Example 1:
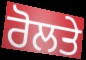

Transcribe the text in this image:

ਰੋਲਤੇ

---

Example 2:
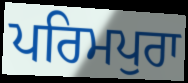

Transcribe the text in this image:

ਪਰਿਮਪੁਰਾ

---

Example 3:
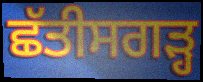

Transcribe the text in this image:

ਛੱਤੀਸਗਡ਼੍ਹ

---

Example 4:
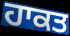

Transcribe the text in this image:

ਹਾਕਤ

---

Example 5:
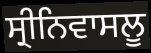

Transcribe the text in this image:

ਸ੍ਰੀਨਿਵਾਸਲੂ